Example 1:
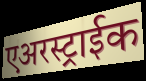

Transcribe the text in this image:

एअरस्ट्राईक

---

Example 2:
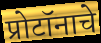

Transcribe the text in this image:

प्रोटॉनाचे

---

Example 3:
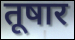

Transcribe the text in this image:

तूषार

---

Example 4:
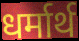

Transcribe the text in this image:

धर्मार्थ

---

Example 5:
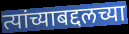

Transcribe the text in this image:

त्यांच्याबद्दलच्या